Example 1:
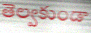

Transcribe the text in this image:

తెల్వకుండా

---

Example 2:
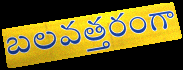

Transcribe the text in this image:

బలవత్తరంగా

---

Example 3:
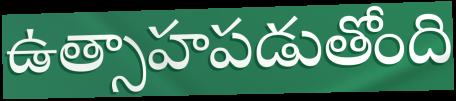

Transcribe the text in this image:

ఉత్సాహపడుతోంది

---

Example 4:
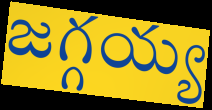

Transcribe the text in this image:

జగ్గయ్య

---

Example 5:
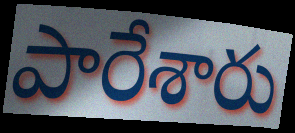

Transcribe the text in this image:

పారేశారు